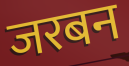
जरबन